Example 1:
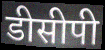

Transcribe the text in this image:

डीसीपी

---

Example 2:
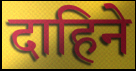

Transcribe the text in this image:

दाहिने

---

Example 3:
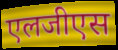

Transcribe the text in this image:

एलजीएस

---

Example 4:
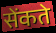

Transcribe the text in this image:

सेंकते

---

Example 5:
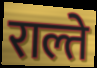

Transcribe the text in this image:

राल्ते